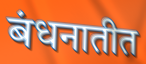
बंधनातीत